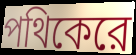
পথিকেরে